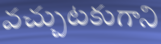
వచ్చుటకుగాని